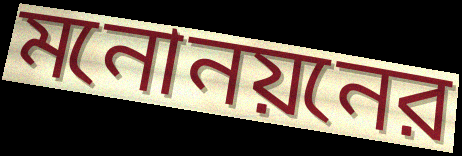
মনোনয়নের